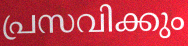
പ്രസവിക്കും